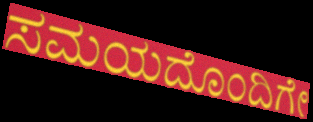
ಸಮಯದೊಂದಿಗೇ